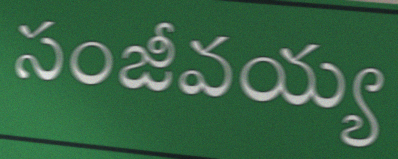
సంజీవయ్య